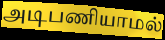
அடிபணியாமல்